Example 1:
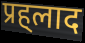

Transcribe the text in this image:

प्रह्‌लाद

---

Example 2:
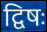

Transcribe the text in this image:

द्विषः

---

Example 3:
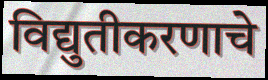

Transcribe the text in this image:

विद्युतीकरणाचे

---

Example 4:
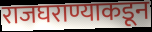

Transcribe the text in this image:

राजघराण्याकडून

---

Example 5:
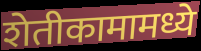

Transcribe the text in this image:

शेतीकामामध्ये